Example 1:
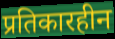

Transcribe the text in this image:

प्रतिकारहीन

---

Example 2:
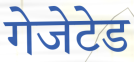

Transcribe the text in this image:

गेजेटेड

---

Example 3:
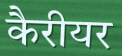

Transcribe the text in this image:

कैरीयर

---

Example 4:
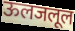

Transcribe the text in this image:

ऊलजलूल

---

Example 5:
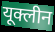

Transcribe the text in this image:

यूक्लीन